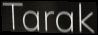
Tarak